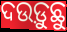
ଦଉଡ଼ୁଛୁ